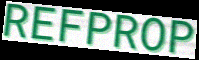
REFPROP